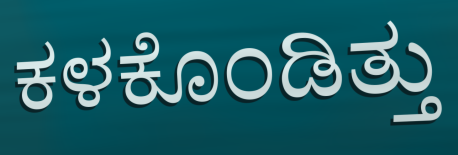
ಕಳಕೊಂಡಿತ್ತು